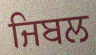
ਜਿਬਲ